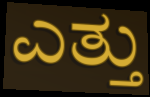
ಎತ್ತು